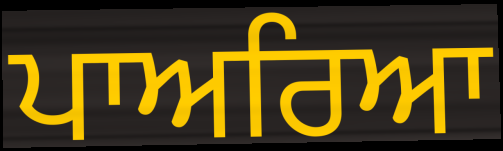
ਪਾਅਰਿਆ